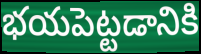
భయపెట్టడానికి